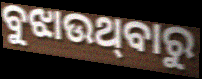
ବୁଝାଉଥ୍‌ବାରୁ